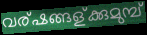
വര്ഷങ്ങള്ക്കുമുമ്പ്